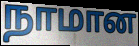
நாமான